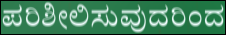
ಪರಿಶೀಲಿಸುವುದರಿಂದ